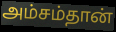
அம்சம்தான்